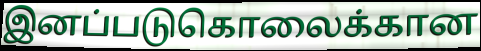
இனப்படுகொலைக்கான